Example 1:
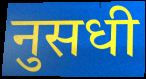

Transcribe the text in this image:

नुसधी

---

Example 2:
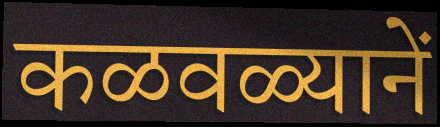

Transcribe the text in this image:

कळवळ्यानें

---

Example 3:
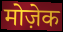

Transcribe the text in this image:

मोज़ेक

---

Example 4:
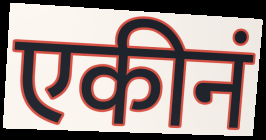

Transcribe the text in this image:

एकीनं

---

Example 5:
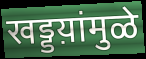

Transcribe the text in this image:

खड्डय़ांमुळे